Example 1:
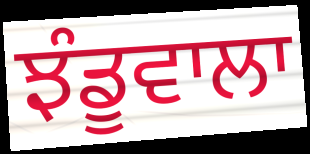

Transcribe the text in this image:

ਝੰਡੂਵਾਲਾ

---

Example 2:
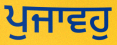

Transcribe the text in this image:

ਪੁਜਾਵਹੁ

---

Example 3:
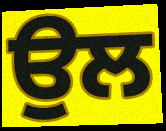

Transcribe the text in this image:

ਉਲ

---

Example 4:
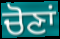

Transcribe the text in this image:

ਚੋਣਾਂ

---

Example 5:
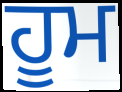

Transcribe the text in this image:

ਹੂਮ